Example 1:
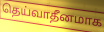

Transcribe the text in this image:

தெய்வாதீனமாக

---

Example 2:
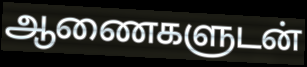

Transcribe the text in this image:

ஆணைகளுடன்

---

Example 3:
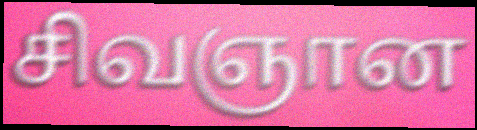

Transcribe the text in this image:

சிவஞான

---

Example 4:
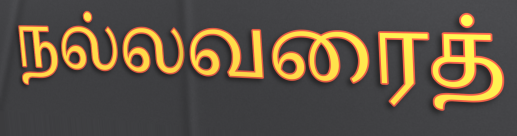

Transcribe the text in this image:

நல்லவரைத்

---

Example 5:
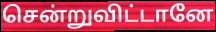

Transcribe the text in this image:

சென்றுவிட்டானே